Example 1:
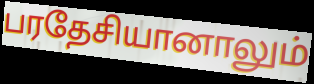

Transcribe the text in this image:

பரதேசியானாலும்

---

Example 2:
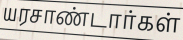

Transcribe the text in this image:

யரசாண்டார்கள்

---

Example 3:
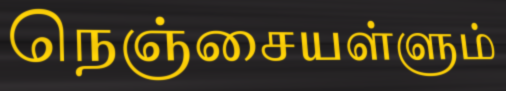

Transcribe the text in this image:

நெஞ்சையள்ளும்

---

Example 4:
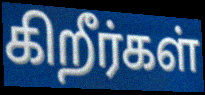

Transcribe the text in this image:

கிறீர்கள்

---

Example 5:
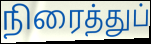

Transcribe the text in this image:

நிரைத்துப்